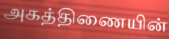
அகத்திணையின்